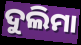
ଦୁଲିମା